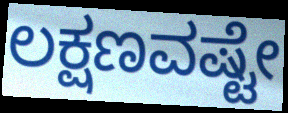
ಲಕ್ಷಣವಷ್ಟೇ